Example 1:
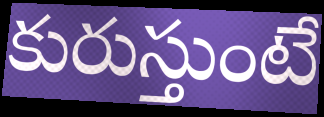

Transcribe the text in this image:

కురుస్తుంటే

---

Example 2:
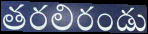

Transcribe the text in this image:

తరలిరండు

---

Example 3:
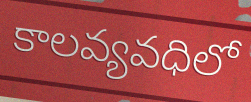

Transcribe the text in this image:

కాలవ్యవధిలో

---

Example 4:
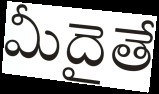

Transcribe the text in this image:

మీదైతే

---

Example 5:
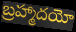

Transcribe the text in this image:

బ్రహ్మాదయో